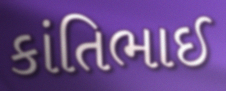
કાંતિભાઈ